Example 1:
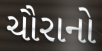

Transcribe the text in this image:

ચૌરાનો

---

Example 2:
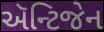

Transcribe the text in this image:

ઍન્ટિજેન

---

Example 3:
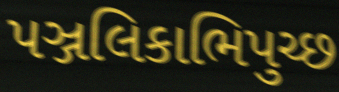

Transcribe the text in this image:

પઞ્જલિકાભિપુચ્છ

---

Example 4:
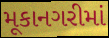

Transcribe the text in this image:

મૂકાનગરીમાં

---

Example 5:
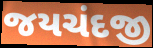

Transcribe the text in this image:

જયચંદજી